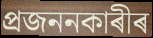
প্ৰজননকাৰীৰ